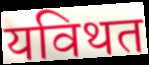
यविथत